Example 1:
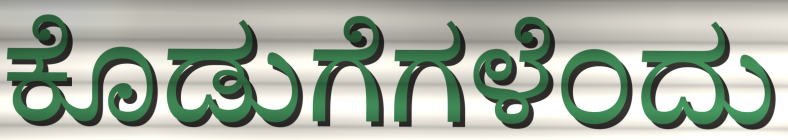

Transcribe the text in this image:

ಕೊಡುಗೆಗಳೆಂದು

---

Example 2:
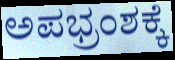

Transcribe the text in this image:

ಅಪಭ್ರಂಶಕ್ಕೆ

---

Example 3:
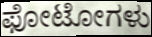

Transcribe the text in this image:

ಫೋಟೋಗಳು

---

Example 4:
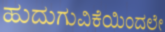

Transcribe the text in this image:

ಹುದುಗುವಿಕೆಯಿಂದಲೇ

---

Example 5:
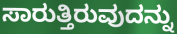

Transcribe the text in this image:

ಸಾರುತ್ತಿರುವುದನ್ನು